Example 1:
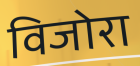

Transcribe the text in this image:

विजोरा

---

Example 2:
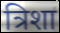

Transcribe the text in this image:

त्रिशा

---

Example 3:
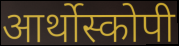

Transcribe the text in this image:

आर्थोस्कोपी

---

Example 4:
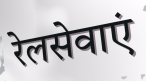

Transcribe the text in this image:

रेलसेवाएं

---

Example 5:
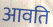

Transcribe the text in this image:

आवति